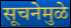
सूचनेमुळे